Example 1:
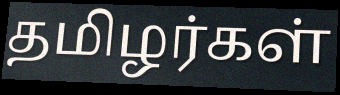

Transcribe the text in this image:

தமிழர்கள்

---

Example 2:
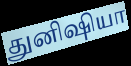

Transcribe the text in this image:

துனிஷியா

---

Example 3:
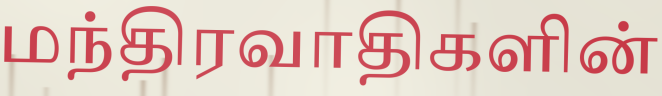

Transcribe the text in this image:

மந்திரவாதிகளின்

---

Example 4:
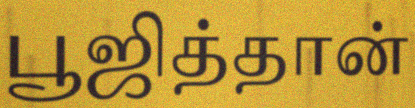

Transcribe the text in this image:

பூஜித்தான்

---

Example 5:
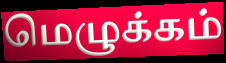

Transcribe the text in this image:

மெழுக்கம்